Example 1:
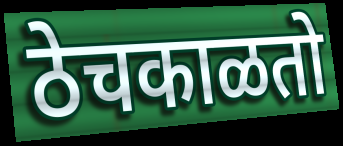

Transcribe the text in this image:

ठेचकाळतो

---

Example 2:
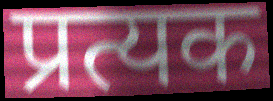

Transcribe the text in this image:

प्रत्यक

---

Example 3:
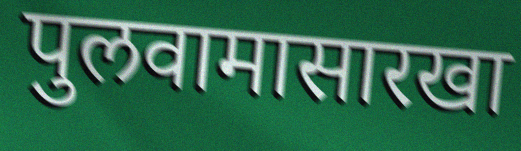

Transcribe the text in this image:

पुलवामासारखा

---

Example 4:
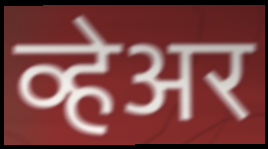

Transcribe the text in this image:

व्हेअर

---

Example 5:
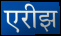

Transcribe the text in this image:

एरीझ